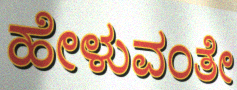
ಹೇಳುವಂತೇ